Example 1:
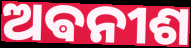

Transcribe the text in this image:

ଅଵନୀଶ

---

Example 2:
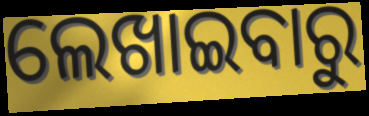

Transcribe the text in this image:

ଲେଖାଇବାରୁ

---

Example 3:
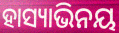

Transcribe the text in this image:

ହାସ୍ୟାଭିନୟ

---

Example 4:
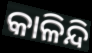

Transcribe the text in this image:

କାଳିନ୍ଦି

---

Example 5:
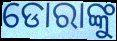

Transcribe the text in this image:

ଡୋରାଙ୍କୁ